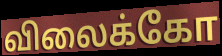
விலைக்கோ